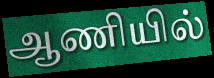
ஆணியில்